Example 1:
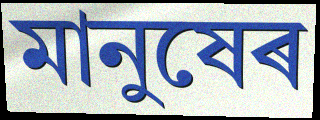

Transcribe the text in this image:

মানুষেৰ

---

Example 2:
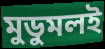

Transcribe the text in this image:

মুডুমলই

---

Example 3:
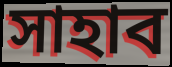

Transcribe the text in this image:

সাহাব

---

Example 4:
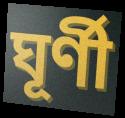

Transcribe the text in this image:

ঘূৰ্ণী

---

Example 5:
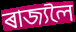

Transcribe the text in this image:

ৰাজ্যলৈ